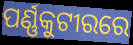
ପର୍ଣ୍ଣକୁଟୀରରେ